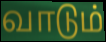
வாடும்